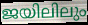
ജയിലിലും